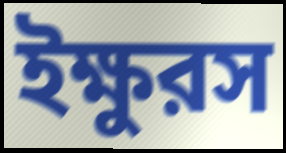
ইক্ষুরস